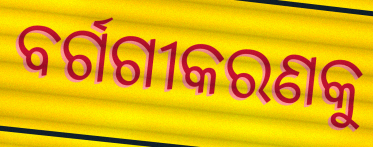
ବର୍ଗଗୀକରଣକୁ